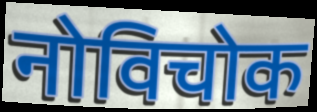
नोविचोक